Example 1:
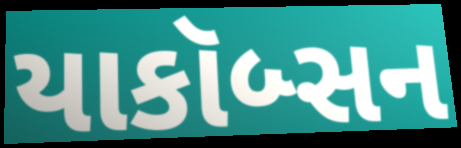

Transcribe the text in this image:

યાકૉબ્સન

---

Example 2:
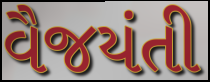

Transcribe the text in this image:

વૈજયંતી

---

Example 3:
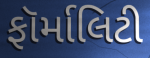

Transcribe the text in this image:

ફૉર્માલિટી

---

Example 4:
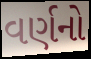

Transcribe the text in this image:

વર્ણનો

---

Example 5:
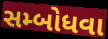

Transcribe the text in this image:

સમ્બોધવા